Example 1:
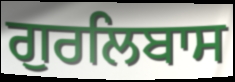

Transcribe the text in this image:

ਗੁਰਲਿਬਾਸ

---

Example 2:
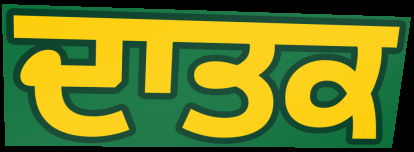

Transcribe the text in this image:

ਦਾਤਕ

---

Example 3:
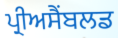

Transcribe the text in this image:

ਪ੍ਰੀਅਸੈਂਬਲਡ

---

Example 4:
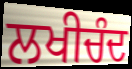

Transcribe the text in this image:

ਲਖੀਚੰਦ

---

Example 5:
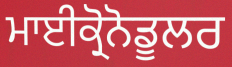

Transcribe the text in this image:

ਮਾਈਕ੍ਰੋਨੋਡੂਲਰ